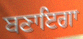
ਬਣਾਇਗਾ